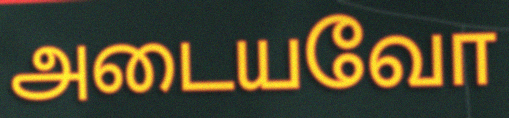
அடையவோ